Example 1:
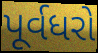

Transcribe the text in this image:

પૂર્વધરો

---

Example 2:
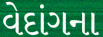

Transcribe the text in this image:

વેદાંગના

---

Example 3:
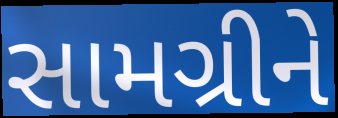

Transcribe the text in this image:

સામગ્રીને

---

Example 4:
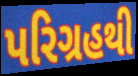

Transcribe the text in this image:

પરિગ્રહથી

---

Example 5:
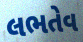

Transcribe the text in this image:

લભતેવ